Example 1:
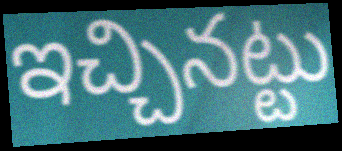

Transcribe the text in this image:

ఇచ్చినట్టు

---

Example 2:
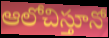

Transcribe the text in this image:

ఆలోచిస్తూనో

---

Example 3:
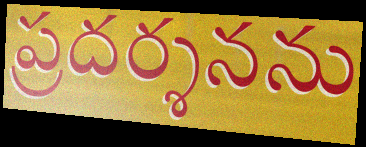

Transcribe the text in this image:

ప్రదర్శనను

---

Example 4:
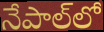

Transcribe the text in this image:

నేపాల్‌లో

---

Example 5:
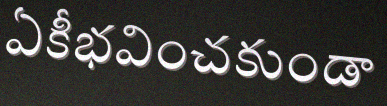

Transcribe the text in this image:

ఏకీభవించకుండా